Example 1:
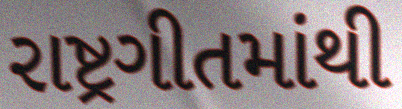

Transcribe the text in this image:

રાષ્ટ્રગીતમાંથી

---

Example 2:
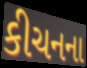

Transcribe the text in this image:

કીચનના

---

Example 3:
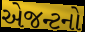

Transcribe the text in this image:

એજન્ટનો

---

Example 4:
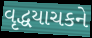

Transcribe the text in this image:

વૃદ્ધયાચકને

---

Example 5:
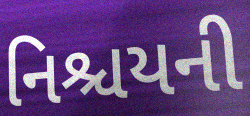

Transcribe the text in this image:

નિશ્ચયની